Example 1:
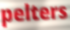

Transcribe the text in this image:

pelters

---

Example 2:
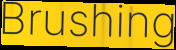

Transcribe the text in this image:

Brushing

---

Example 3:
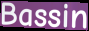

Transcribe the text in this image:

Bassin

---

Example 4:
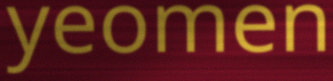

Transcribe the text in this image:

yeomen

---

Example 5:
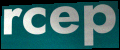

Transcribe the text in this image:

rcep